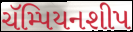
ચૅમ્પિયનશીપ